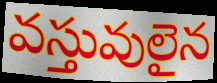
వస్తువులైన